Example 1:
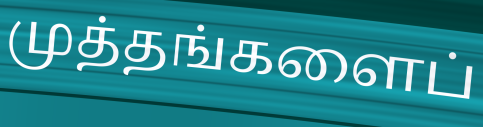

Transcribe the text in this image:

முத்தங்களைப்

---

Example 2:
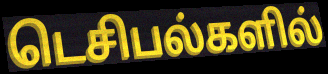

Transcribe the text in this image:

டெசிபல்களில்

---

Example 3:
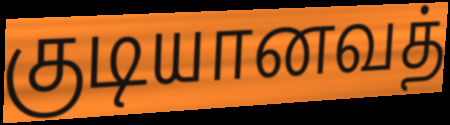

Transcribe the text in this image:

குடியானவத்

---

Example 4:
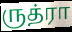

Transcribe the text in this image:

ருத்ரா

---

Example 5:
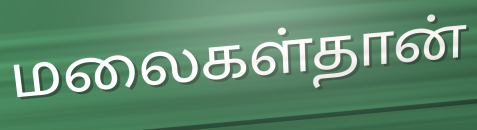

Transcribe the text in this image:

மலைகள்தான்